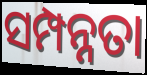
ସମ୍ପନ୍ନତା